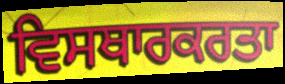
ਵਿਸਥਾਰਕਰਤਾ